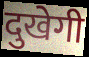
दुखेगी